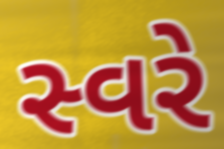
સ્વરે